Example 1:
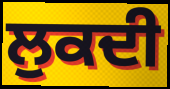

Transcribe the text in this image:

ਲੁਕਦੀ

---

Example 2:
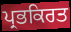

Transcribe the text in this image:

ਪ੍ਰਭਕਿਰਤ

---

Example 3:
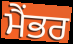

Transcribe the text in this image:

ਮੈਂਭਰ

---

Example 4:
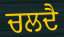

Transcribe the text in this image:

ਚਲਦੈ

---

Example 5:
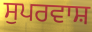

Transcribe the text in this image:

ਸੁਪਰਵਾਸ਼